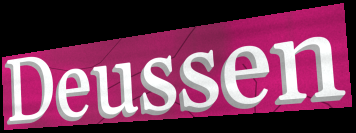
Deussen